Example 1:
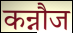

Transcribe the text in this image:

कन्नौज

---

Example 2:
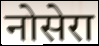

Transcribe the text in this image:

नोसेरा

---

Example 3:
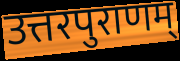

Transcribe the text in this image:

उत्तरपुराणम्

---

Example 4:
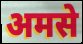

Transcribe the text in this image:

अमसे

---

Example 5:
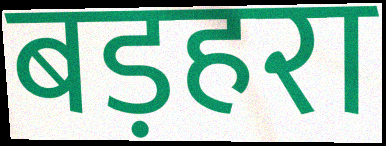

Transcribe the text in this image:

बड़हरा